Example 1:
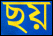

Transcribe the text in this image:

ছয়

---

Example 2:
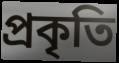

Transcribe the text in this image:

প্রকৃতি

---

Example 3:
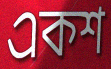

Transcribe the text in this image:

একশ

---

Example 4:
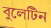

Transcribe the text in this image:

বুলেটিন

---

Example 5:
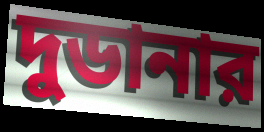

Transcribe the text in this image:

দুডানার